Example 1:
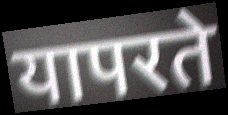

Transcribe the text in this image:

यापरते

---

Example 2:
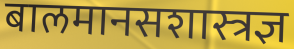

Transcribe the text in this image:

बालमानसशास्त्रज्ञ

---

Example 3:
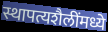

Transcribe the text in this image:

स्थापत्यशैलींमध्ये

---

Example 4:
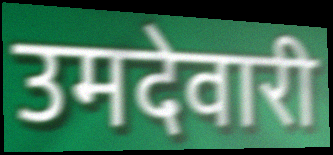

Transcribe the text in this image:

उमदेवारी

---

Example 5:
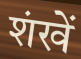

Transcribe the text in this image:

शंखें